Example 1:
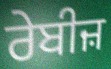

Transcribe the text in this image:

ਰੇਬੀਜ਼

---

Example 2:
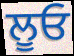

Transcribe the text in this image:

ਲੂਓ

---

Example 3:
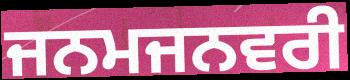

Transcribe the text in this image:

ਜਨਮਜਨਵਰੀ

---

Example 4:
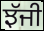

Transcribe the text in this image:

ਝੱਜੀ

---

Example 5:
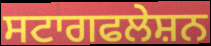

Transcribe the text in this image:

ਸਟਾਗਫਲੇਸ਼ਨ